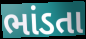
ભાંડતા